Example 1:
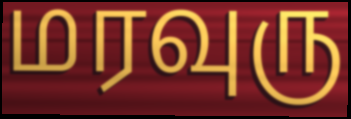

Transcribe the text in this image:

மரவுரு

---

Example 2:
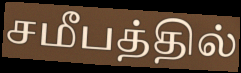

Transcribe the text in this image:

சமீபத்தில்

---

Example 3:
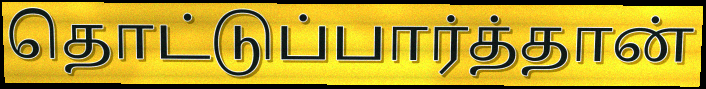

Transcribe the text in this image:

தொட்டுப்பார்த்தான்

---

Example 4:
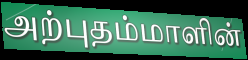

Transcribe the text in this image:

அற்புதம்மாளின்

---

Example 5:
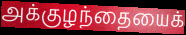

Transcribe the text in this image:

அக்குழந்தையைக்